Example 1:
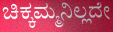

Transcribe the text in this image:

ಚಿಕ್ಕಮ್ಮನಿಲ್ಲದೇ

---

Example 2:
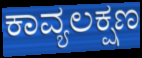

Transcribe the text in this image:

ಕಾವ್ಯಲಕ್ಷಣ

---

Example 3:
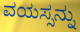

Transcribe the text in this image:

ವಯಸ್ಸನ್ನು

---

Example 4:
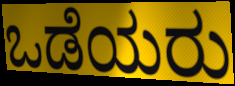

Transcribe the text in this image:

ಒಡೆಯರು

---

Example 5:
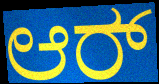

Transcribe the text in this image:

ಆರ್‍